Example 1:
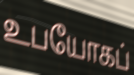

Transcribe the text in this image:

உபயோகப்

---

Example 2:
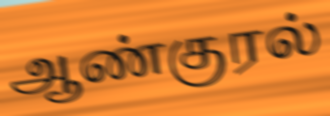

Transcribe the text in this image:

ஆண்குரல்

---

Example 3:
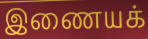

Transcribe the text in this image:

இணையக்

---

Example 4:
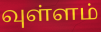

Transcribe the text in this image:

வுள்ளம்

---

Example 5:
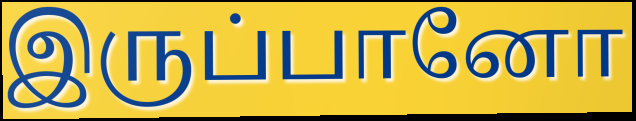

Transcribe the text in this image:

இருப்பானோ